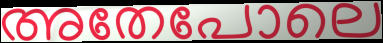
അതേപോലെ